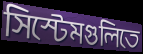
সিস্টেমগুলিতে